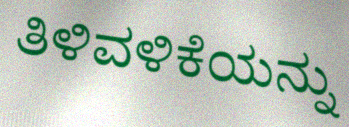
ತಿಳಿವಳಿಕೆಯನ್ನು